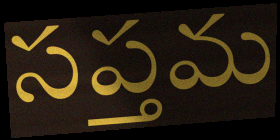
సప్తమ